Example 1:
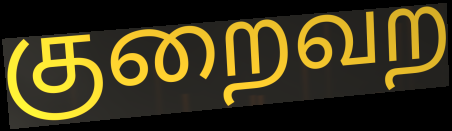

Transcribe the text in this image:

குறைவற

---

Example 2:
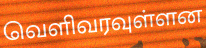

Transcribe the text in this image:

வெளிவரவுள்ளன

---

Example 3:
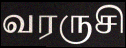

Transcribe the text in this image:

வரருசி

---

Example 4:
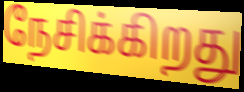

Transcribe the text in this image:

நேசிக்கிறது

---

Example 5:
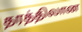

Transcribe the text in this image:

தரத்திலான